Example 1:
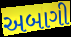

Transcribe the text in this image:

અબાગી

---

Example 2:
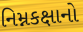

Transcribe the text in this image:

નિમ્નકક્ષાનો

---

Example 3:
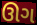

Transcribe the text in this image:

ઊગ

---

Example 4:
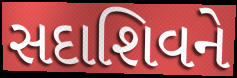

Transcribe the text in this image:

સદાશિવને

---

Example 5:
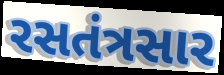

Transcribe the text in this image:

રસતંત્રસાર